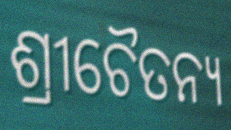
ଶ୍ରୀଚୈତନ୍ୟ